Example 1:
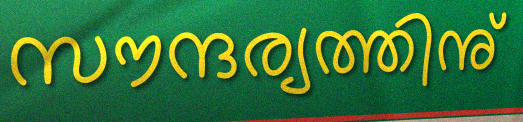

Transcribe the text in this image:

സൗന്ദര്യത്തിനു്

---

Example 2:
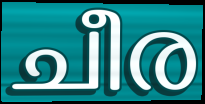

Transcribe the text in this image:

ചീര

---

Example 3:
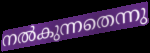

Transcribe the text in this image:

നൽകുന്നതെന്നു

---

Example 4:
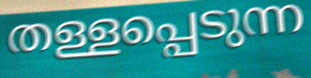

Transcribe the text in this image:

തള്ളപ്പെടുന്ന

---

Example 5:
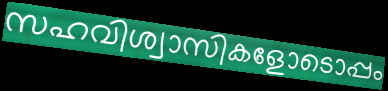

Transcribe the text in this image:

സഹവിശ്വാസികളോടൊപ്പം